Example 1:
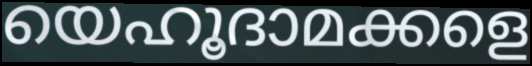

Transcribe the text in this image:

യെഹൂദാമക്കളെ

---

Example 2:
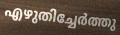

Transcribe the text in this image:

എഴുതിച്ചേർത്തു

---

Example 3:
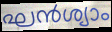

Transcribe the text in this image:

ഘൻശ്യാം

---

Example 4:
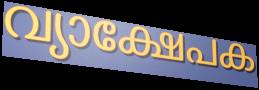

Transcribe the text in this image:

വ്യാക്ഷേപക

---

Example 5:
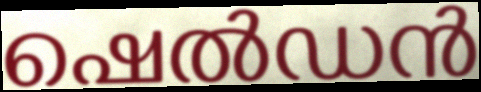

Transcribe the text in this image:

ഷെൽഡൻ